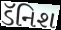
ડૅનિશ